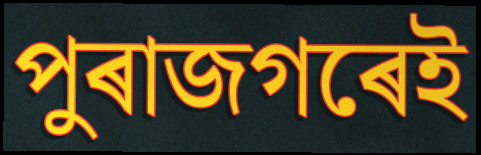
পুৰাজগৰেই